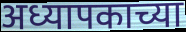
अध्यापकाच्या